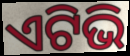
ଏଟିଭି